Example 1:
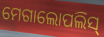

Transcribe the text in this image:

ମେଗାଲୋପଲିସ୍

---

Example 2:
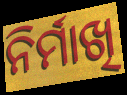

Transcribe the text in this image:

ନିର୍ମାଖି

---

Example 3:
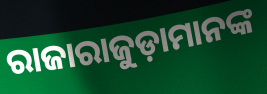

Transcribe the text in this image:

ରାଜାରାଜୁଡ଼ାମାନଙ୍କ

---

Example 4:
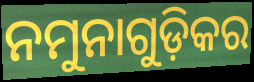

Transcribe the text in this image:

ନମୁନାଗୁଡ଼ିକର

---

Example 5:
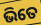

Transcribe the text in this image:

ଭିତେ